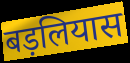
बड़लियास